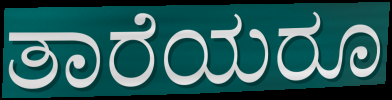
ತಾರೆಯರೂ